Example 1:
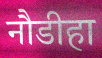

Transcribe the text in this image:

नौडीहा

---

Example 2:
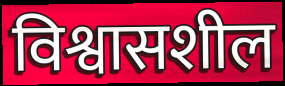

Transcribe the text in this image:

विश्वासशील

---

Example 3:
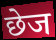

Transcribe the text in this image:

छेज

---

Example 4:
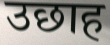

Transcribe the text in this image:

उछाह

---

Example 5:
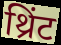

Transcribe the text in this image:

थ्रिंट